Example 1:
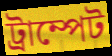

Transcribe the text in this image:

ট্রাম্পেট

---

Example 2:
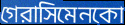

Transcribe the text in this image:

গেরাসিমেনকো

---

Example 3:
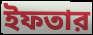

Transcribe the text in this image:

ইফতার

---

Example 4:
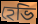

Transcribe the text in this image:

হেভি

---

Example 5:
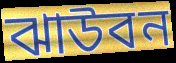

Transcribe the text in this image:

ঝাউবন